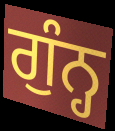
ਗੁੰਨ੍ਹ